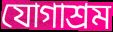
যোগাশ্রম